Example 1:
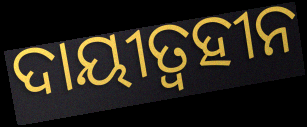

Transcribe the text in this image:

ଦାୟୀତ୍ୱହୀନ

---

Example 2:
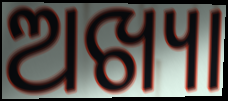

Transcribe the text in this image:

ଅଖ୍ୟା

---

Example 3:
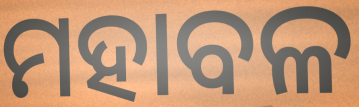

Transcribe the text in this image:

ମହାବଳ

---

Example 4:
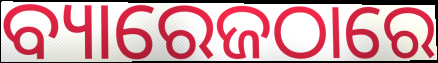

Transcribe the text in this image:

ବ୍ୟାରେଜଠାରେ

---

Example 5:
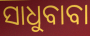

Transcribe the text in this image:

ସାଧୁବାବା